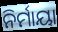
ନିର୍ମାୟା